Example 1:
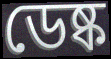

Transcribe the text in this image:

ডেষ্ক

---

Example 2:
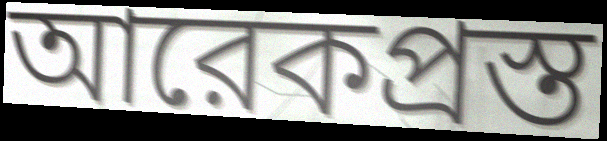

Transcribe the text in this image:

আরেকপ্রস্ত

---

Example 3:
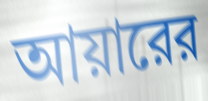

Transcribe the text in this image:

আয়ারের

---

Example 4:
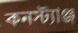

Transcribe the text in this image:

কনস্ট্যাঞ্জ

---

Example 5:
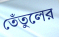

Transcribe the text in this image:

তেঁতুলের